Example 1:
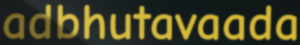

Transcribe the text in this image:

adbhutavaada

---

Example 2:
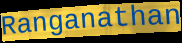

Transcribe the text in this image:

Ranganathan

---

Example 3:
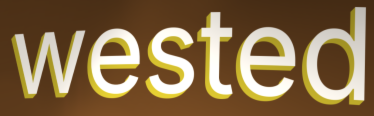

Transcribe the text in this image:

wested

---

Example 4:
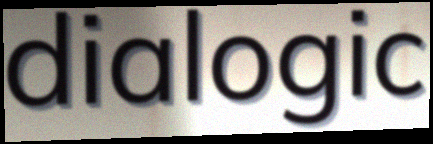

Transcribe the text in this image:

dialogic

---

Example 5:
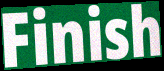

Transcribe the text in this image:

Finish